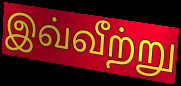
இவ்வீற்று